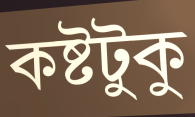
কষ্টটুকু